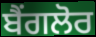
ਬੈਂਗਲੋਰ